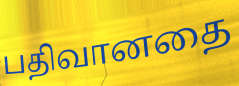
பதிவானதை